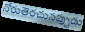
నోరుతెరచునప్పుడు